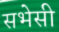
सभेसी